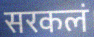
सरकलं